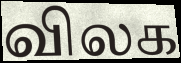
விலக